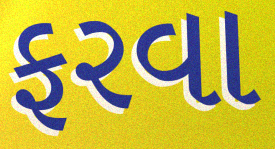
ફરવા